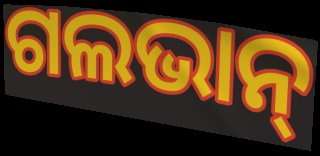
ଗଲଭାନ୍